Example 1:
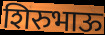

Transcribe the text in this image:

शिरुभाऊ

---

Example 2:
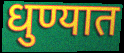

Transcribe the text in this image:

धुण्यात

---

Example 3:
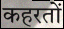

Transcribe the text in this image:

कहरतों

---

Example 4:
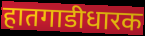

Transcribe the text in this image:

हातगाडीधारक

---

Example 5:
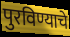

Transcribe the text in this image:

पुरविण्याचे